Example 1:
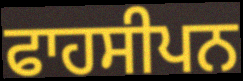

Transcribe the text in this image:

ਫਾਹਸੀਪਨ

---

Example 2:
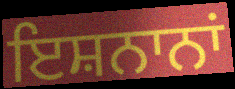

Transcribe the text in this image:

ਇਸ਼ਨਾਨਾਂ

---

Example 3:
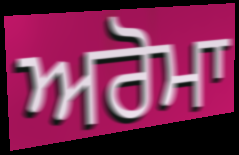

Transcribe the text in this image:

ਅਰੋਮਾ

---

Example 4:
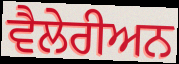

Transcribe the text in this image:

ਵੈਲੇਰੀਅਨ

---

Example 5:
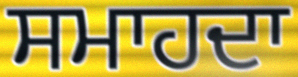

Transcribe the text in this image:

ਸਮਾਹਦਾ